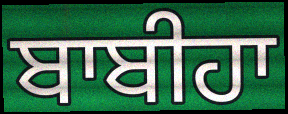
ਬਾਬੀਹਾ